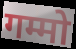
गम्मो